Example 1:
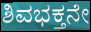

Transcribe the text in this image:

ಶಿವಭಕ್ತನೇ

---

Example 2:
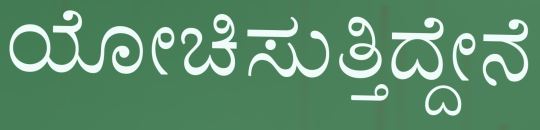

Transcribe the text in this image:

ಯೋಚಿಸುತ್ತಿದ್ದೇನೆ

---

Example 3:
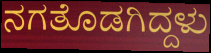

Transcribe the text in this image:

ನಗತೊಡಗಿದ್ದಳು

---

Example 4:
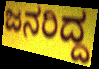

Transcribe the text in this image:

ಜನರಿದ್ದ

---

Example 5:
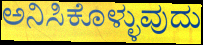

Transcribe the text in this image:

ಅನಿಸಿಕೊಳ್ಳುವುದು